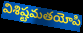
విశిష్టమతయోపి